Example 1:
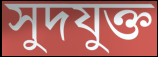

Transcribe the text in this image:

সুদযুক্ত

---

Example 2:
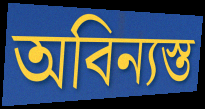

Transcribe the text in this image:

অবিন্যস্ত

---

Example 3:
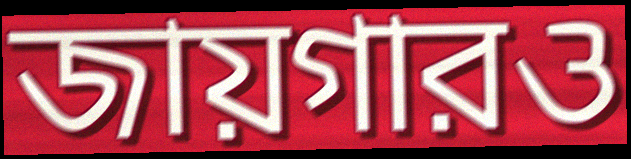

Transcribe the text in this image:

জায়গারও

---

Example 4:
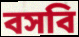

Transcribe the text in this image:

বসবি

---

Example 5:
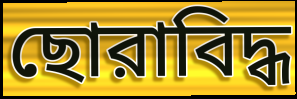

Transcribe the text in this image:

ছোরাবিদ্ধ